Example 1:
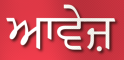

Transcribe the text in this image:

ਆਵੇਜ਼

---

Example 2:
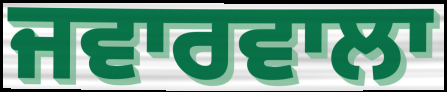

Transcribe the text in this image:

ਜਵਾਰਵਾਲਾ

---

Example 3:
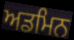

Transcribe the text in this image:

ਅਡਮਿਨ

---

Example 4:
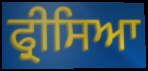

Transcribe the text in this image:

ਫ੍ਰੀਸਿਆ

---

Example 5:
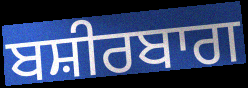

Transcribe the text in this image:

ਬਸ਼ੀਰਬਾਗ